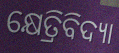
କ୍ଷେତ୍ରିବିଦ୍ୟା